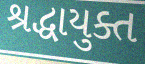
શ્રદ્ધાયુક્ત